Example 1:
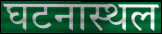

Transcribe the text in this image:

घटनास्थल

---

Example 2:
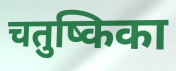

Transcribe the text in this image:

चतुष्किका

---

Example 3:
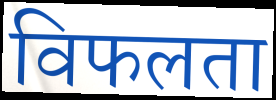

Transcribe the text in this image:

विफलता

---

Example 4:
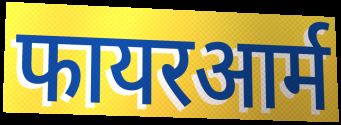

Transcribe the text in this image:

फायरआर्म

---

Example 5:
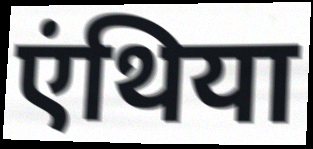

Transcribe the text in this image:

एंथिया